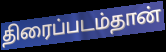
திரைப்படம்தான்